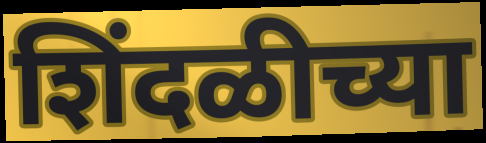
शिंदळीच्या